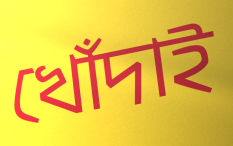
খোঁদাই